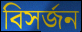
বিসৰ্জন